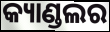
କ୍ୟାଣ୍ଡଲର